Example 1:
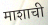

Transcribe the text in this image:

माशाची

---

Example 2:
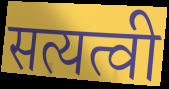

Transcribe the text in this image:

सत्यत्वी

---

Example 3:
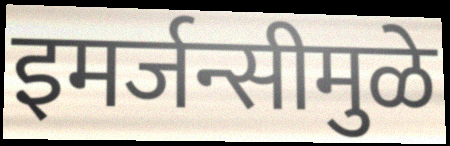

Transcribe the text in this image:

इमर्जन्सीमुळे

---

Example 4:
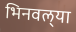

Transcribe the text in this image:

भिनवल्या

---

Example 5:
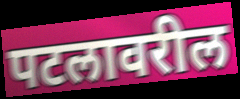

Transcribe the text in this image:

पटलावरील